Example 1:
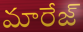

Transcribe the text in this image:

మారేజ్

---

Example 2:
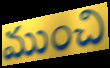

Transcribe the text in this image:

ముంచి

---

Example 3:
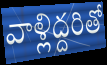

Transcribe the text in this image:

వాళ్లిద్దరితో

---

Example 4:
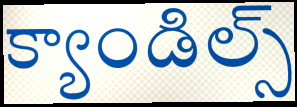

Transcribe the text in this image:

క్యాండిల్స్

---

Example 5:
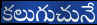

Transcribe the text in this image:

కలుగుచునే